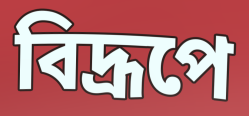
বিদ্রূপে